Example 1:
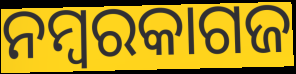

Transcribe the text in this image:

ନମ୍ବରକାଗଜ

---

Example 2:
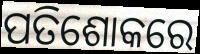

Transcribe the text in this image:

ପତିଶୋକରେ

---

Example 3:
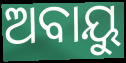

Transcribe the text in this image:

ଅବାୟୁ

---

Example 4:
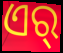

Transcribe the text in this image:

ଏର୍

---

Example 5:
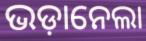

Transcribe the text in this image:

ଭଡ଼ାନେଲା